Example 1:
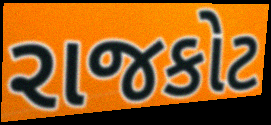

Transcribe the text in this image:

રાજકોટ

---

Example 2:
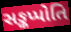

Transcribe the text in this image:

સઙ્કપ્પોતિ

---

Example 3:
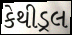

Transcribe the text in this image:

કેથીડ્રલ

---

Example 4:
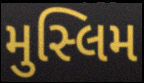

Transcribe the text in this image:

મુસ્લિમ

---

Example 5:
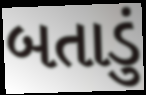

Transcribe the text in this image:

બતાડું